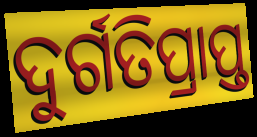
ଦୁର୍ଗତିପ୍ରାପ୍ତ